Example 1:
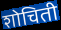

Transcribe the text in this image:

शोचिती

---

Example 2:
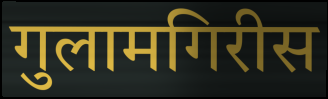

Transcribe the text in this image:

गुलामगिरीस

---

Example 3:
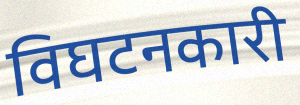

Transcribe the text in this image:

विघटनकारी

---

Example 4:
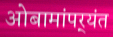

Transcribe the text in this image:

ओबामांपर्यंत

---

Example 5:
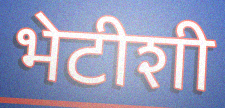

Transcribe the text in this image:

भेटीशी